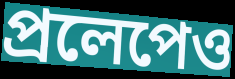
প্রলেপেও